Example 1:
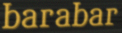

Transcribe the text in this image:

barabar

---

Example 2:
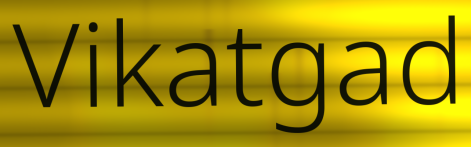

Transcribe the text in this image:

Vikatgad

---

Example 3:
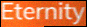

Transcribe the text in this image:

Eternity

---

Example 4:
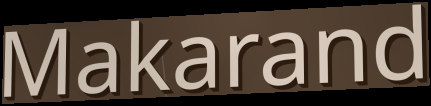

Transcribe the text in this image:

Makarand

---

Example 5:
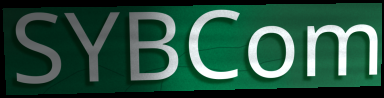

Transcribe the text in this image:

SYBCom